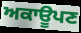
ਅਕਾਊਪਣ